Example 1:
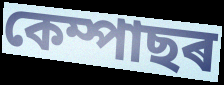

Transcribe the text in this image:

কেম্পাছৰ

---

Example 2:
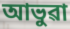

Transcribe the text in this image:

আভুৱা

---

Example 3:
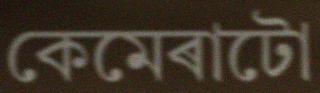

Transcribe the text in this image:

কেমেৰাটো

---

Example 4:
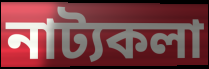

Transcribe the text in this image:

নাট্যকলা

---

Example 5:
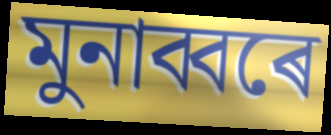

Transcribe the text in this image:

মুনাব্বৰে